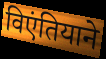
विएंतियाने